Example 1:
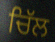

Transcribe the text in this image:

ਚਿੱਲ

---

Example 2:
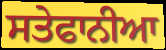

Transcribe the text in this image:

ਸਤੇਫਾਨੀਆ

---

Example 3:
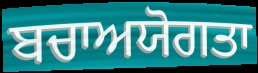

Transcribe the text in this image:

ਬਚਾਅਯੋਗਤਾ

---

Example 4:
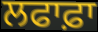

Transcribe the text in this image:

ਲਫਾਫ਼ਾ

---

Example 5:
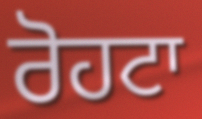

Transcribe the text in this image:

ਰੋਹਟਾ